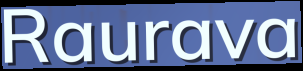
Raurava